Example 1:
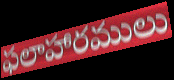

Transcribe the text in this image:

ఫలాహారములు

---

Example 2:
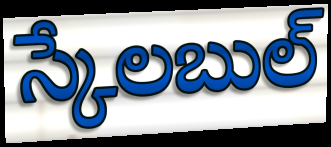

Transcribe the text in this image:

స్కేలబుల్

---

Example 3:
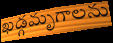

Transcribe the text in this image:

ఖడ్గమృగాలను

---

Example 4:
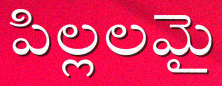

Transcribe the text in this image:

పిల్లలమై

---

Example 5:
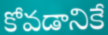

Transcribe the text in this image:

కోవడానికే